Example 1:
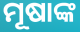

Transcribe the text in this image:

ମୂଷାଙ୍କ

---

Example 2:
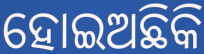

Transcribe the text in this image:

ହୋଇଅଛିକି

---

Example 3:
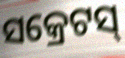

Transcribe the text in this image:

ସକ୍ରେଟସ୍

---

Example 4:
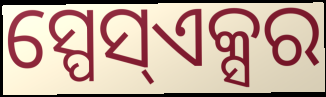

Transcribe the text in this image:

ସ୍ପେସ୍ଏକ୍ସର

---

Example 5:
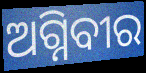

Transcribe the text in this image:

ଅଗ୍ନିବୀର